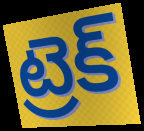
ట్రెక్